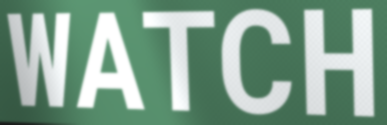
WATCH